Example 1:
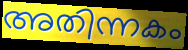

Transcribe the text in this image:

അതിന്നകം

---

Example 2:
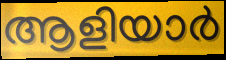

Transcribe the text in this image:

ആളിയാർ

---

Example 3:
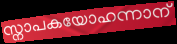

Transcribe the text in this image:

സ്നാപകയോഹന്നാന്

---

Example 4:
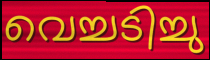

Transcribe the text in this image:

വെച്ചടിച്ചു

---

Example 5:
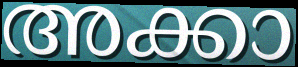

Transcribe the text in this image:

അക്കാ